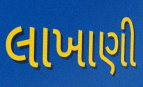
લાખાણી